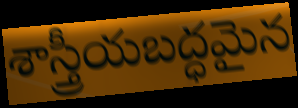
శాస్త్రీయబద్ధమైన